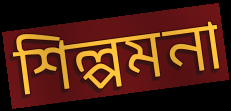
শিল্পমনা